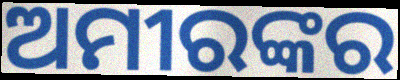
ଅମୀରଙ୍କର